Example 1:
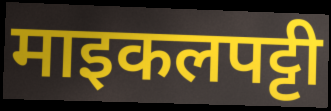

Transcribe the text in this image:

माइकलपट्टी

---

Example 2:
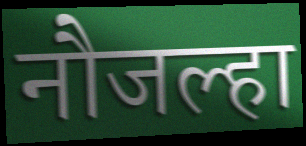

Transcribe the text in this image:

नौजल्हा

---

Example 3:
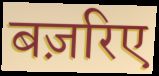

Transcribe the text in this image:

बज़रिए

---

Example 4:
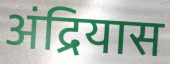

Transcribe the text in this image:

अंद्रियास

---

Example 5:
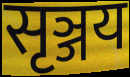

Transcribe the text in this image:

सृञ्जय